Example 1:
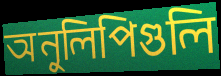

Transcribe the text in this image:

অনুলিপিগুলি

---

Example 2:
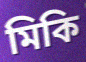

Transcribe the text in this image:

মিকি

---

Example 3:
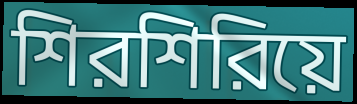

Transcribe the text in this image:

শিরশিরিয়ে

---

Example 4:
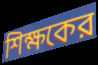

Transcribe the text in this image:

শিক্ষকের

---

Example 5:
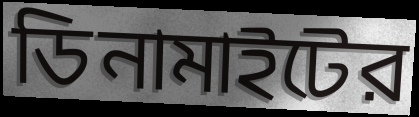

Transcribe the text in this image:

ডিনামাইটের